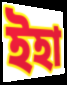
ইহা